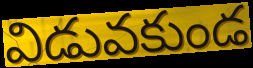
విడువకుండ